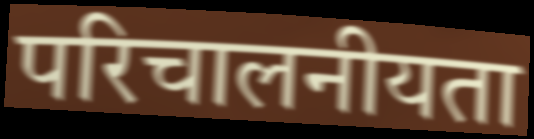
परिचालनीयता